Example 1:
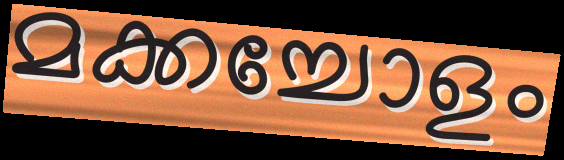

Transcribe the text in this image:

മക്കച്ചോളം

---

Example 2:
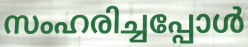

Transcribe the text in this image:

സംഹരിച്ചപ്പോൾ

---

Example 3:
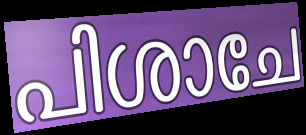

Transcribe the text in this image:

പിശാചേ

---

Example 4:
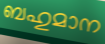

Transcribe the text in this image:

ബഹുമാന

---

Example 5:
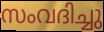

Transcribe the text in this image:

സംവദിച്ചു